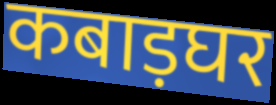
कबाड़घर